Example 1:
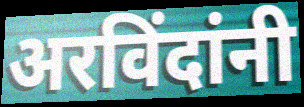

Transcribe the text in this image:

अरविंदांनी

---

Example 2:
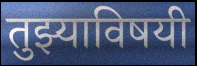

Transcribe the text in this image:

तुझ्याविषयी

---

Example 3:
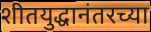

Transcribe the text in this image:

शीतयुद्धानंतरच्या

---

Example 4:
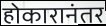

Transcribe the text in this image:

होकारानंतर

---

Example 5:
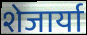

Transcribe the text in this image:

शेजार्या